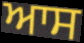
ਆਸ